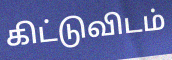
கிட்டுவிடம்